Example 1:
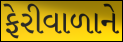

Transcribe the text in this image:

ફેરીવાળાને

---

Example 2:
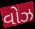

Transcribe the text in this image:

વોઝ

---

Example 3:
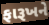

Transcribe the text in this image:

ફારૂખને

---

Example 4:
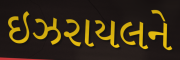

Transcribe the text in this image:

ઇઝરાયલને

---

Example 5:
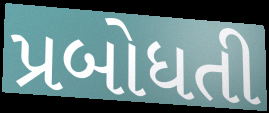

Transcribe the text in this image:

પ્રબોધતી